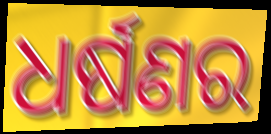
ଧର୍ଷଣର